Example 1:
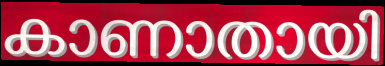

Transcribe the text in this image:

കാണാതായി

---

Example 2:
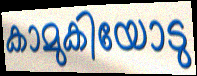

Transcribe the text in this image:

കാമുകിയോടു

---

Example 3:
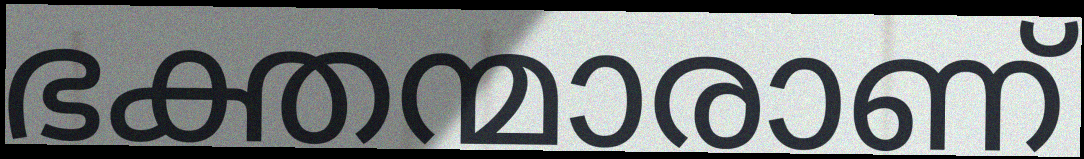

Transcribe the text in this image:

ഭക്തന്മാരാണ്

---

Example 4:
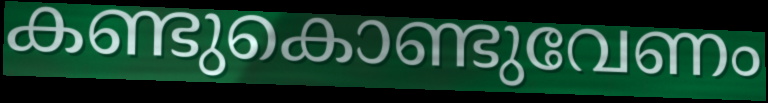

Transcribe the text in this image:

കണ്ടുകൊണ്ടുവേണം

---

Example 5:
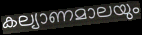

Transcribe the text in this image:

കല്യാണമാലയും